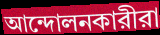
আন্দোলনকারীরা